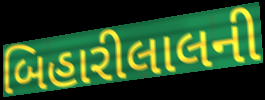
બિહારીલાલની